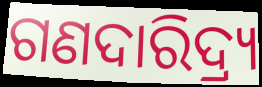
ଗଣଦାରିଦ୍ର୍ୟ